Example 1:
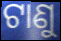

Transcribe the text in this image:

ଟାଣୁ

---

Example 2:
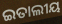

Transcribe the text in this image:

ଇତାଲୀୟ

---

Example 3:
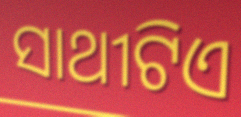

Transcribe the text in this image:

ସାଥୀଟିଏ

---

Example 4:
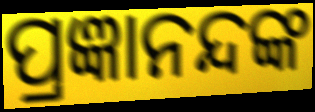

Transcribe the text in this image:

ପ୍ରଜ୍ଞାନନ୍ଦଙ୍କ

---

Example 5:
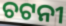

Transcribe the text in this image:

ଚଟନୀ